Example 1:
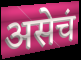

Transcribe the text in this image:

असेचं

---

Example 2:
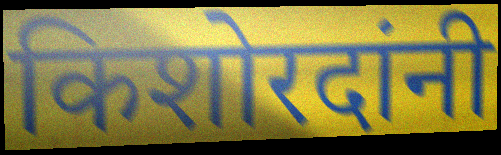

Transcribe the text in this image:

किशोरदांनी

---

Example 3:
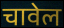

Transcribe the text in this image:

चावेल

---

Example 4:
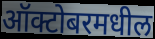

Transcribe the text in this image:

ऑक्टोबरमधील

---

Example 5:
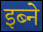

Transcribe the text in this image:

इब्ने